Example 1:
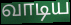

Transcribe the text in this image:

வாடிய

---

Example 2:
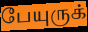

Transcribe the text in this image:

பேயுருக்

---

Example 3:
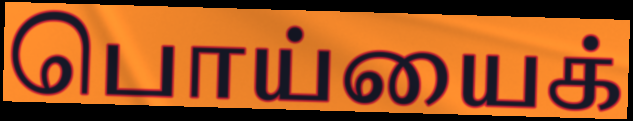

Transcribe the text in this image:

பொய்யைக்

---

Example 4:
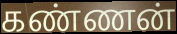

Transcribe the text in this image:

கண்ணன்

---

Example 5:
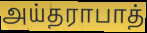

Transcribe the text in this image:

அய்தராபாத்